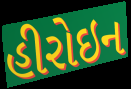
હીરોઇન